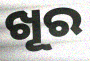
ଖୂର